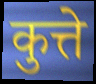
कुत्ते